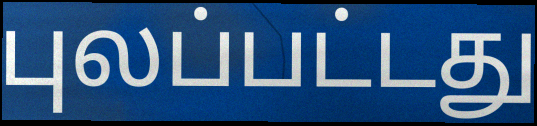
புலப்பட்டது